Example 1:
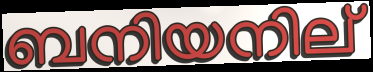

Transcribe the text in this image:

ബനിയനില്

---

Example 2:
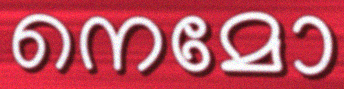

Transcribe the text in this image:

നെമോ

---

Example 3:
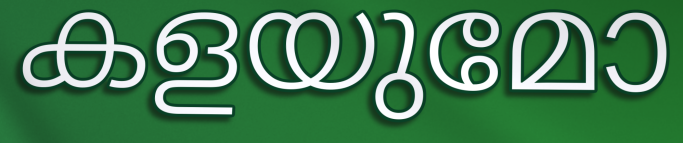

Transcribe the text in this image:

കളയുമോ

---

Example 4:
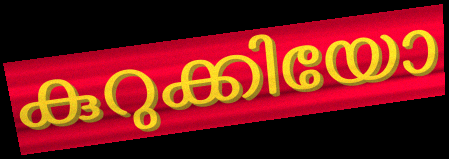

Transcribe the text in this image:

കുറുക്കിയോ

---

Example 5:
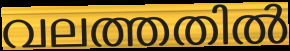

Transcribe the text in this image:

വലത്തതിൽ